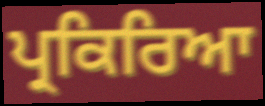
ਪ੍ਰਕਿਰਿਆ